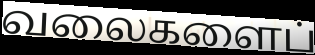
வலைகளைப்